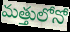
మత్తులోనో